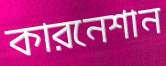
কারনেশান